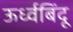
ऊर्ध्वबिंदू